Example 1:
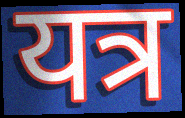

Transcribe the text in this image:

यत्र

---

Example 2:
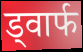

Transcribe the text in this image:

ड्वार्फ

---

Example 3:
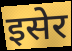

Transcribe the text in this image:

इसेर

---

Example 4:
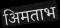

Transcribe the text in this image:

अिमताभ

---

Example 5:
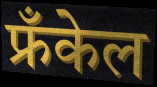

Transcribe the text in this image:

फ्रँकेल